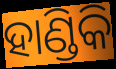
ହାଣ୍ଡିକି